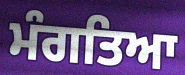
ਮੰਗਤਿਆ